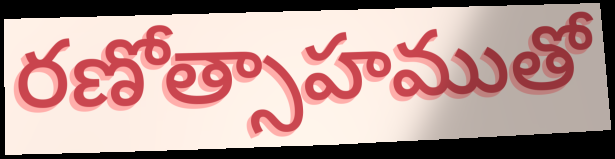
రణోత్సాహముతో